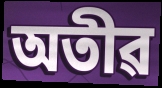
অতীৱ